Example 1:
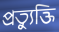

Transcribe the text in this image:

প্রত্যুক্তি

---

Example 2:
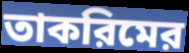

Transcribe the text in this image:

তাকরিমের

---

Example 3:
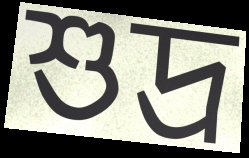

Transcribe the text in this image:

শুদ্র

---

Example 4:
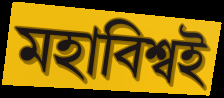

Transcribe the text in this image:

মহাবিশ্বই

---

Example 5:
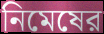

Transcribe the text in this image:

নিমেষের